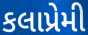
કલાપ્રેમી